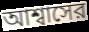
আশ্বাসের